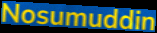
Nosumuddin